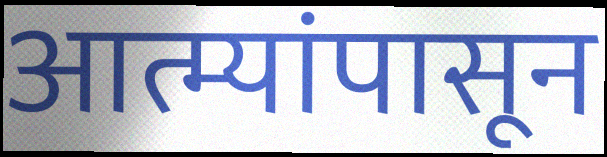
आत्म्यांपासून